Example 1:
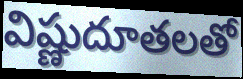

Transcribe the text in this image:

విష్ణుదూతలతో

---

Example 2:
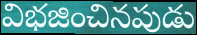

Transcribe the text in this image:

విభజించినపుడు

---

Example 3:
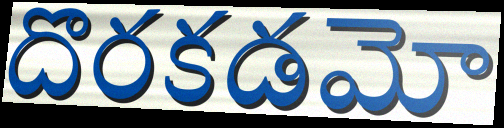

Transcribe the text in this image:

దొరకడమో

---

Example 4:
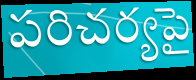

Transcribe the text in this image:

పరిచర్యపై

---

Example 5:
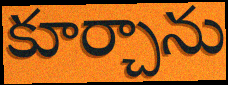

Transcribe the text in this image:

కూర్చాను